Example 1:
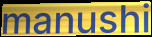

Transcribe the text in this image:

manushi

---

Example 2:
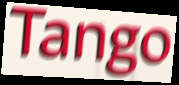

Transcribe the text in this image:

Tango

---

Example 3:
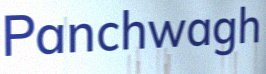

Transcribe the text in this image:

Panchwagh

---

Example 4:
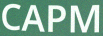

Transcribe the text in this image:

CAPM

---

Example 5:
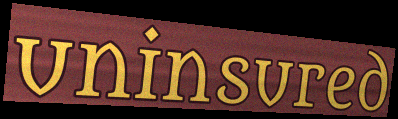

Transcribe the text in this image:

uninsured